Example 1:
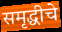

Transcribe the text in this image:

समृद्धीचे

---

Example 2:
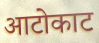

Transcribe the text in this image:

आटोकाट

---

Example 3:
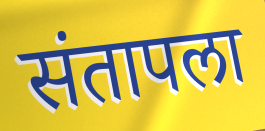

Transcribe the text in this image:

संतापला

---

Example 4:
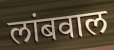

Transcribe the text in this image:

लांबवाल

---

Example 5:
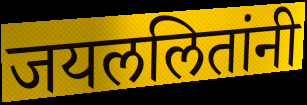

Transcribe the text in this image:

जयललितांनी